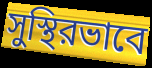
সুস্থিরভাবে